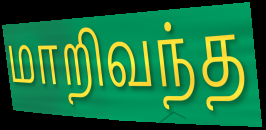
மாறிவந்த